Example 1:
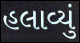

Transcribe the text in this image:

હલાવ્યું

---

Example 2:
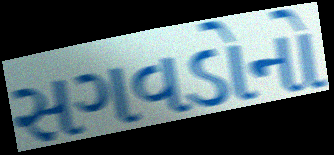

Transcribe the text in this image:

સગવડોનો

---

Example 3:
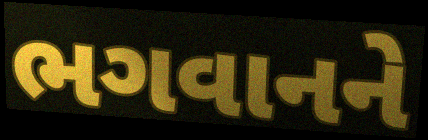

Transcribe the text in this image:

ભગવાનને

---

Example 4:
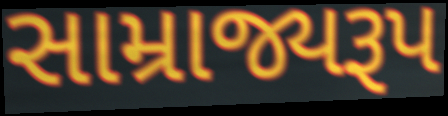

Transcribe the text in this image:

સામ્રાજ્યરૂપ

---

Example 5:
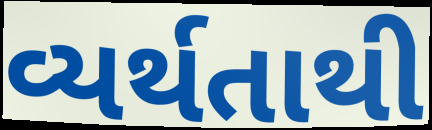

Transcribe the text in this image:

વ્યર્થતાથી